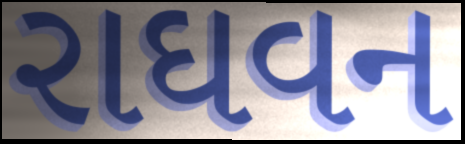
રાઘવન